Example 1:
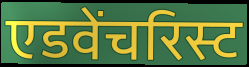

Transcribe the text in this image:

एडवेंचरिस्ट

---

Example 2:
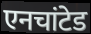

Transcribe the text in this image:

एनचांटेड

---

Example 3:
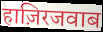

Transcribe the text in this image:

हाज़िरजवाब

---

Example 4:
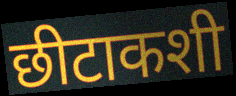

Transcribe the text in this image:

छीटाकशी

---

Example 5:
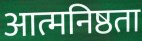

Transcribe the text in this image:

आत्मनिष्ठता